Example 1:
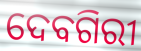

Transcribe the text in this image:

ଦେବଗିରୀ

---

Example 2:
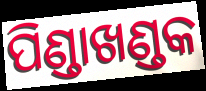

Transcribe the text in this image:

ପିଣ୍ଡାଖଣ୍ଡକ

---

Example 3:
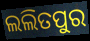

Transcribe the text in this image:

ଲଲିତପୁର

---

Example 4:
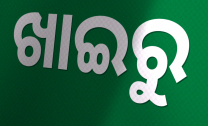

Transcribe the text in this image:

ଖାଇରୁ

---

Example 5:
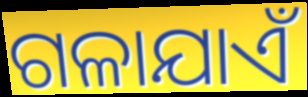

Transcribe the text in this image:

ଗଳାଯାଏଁ